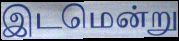
இடமென்று